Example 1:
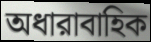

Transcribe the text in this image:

অধারাবাহিক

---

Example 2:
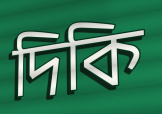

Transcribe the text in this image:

দিকি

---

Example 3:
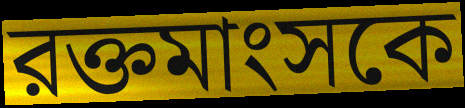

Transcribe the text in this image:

রক্তমাংসকে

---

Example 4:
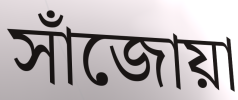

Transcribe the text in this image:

সাঁজোয়া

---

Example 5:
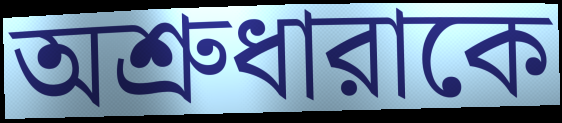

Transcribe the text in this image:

অশ্রুধারাকে